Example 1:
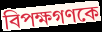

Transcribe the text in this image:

বিপক্ষগণকে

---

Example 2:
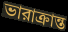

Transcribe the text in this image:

ভারাক্রান্ত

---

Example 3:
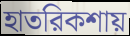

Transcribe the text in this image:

হাতরিকশায়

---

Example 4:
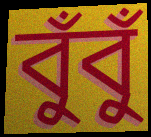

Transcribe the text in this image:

বুঁবুঁ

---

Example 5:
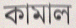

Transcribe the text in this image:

কামাল